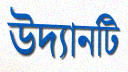
উদ্যানটি